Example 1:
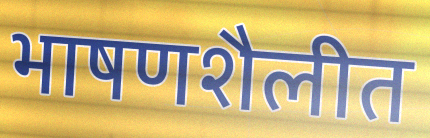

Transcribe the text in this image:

भाषणशैलीत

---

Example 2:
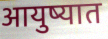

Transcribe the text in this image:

आयुष्यात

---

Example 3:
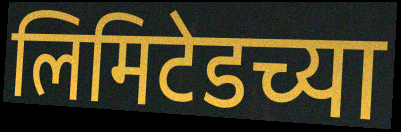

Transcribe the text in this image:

लिमिटेडच्या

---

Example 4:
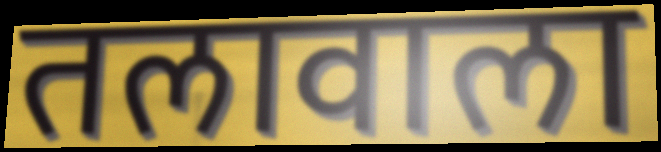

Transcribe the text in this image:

तलावाला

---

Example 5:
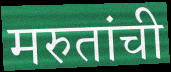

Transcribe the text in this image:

मरुतांची